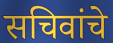
सचिवांचे